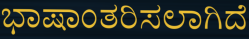
ಭಾಷಾಂತರಿಸಲಾಗಿದೆ